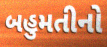
બહુમતીનો